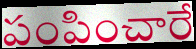
పంపించారే